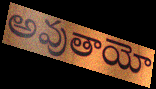
అవుతాయో